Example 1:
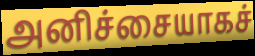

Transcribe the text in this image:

அனிச்சையாகச்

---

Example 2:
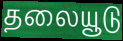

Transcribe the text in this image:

தலையூடு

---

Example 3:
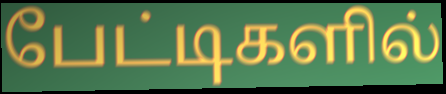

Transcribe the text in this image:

பேட்டிகளில்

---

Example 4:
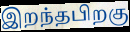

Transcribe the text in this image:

இறந்தபிறகு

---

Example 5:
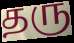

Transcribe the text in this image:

தரு